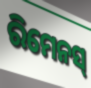
ରିମେନସ୍